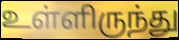
உள்ளிருந்து